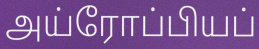
அய்ரோப்பியப்